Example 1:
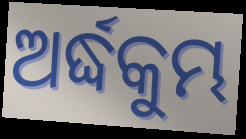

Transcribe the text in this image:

ଅର୍ଦ୍ଧକୁମ୍ଭ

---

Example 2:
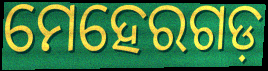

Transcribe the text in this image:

ମେହେରଗଡ଼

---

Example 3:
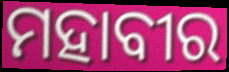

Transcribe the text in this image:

ମହାବୀର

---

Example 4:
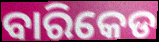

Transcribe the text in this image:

ବାରିକେଡ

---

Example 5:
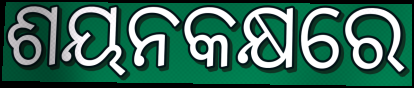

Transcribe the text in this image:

ଶୟନକକ୍ଷରେ